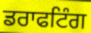
ਡਰਾਫਟਿੰਗ